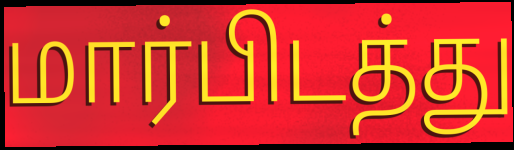
மார்பிடத்து